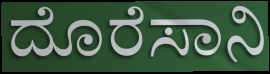
ದೊರೆಸಾನಿ